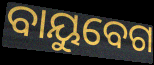
ବାୟୁବେଗ